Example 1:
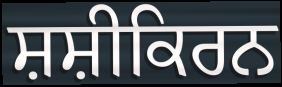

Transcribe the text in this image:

ਸ਼ਸ਼ੀਕਿਰਨ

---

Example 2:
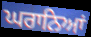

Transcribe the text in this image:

ਘਰਾਨਿਆਂ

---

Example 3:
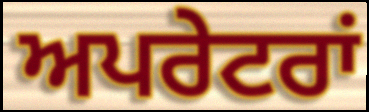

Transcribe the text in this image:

ਅਪਰੇਟਰਾਂ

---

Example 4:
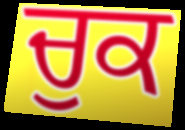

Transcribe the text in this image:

ਚੁਕ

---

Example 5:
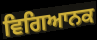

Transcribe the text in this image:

ਵਿਗਿਆਨਕ